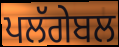
ਪਲੱਗੇਬਲ